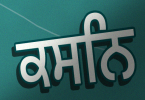
ਕਸਨਿ